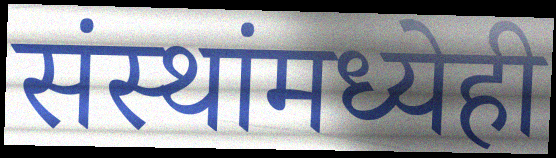
संस्थांमध्येही